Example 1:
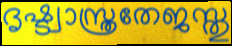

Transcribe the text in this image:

ദൃഷ്ട്വാസ്ത്രതേജസ്തു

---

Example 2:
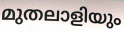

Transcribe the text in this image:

മുതലാളിയും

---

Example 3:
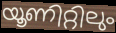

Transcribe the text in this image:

യൂണിറ്റിലും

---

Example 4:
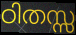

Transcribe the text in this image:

ഠിതസ്സ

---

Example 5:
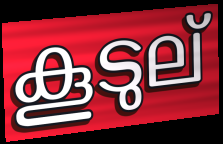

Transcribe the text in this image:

കൂടുല്